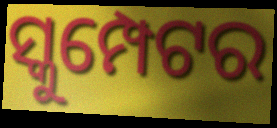
ସ୍କୁମ୍ପେଟର